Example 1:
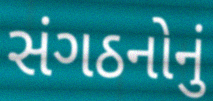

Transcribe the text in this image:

સંગઠનોનું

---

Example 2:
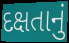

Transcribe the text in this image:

દક્ષતાનું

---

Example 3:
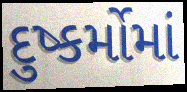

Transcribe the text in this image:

દુષ્કર્મોમાં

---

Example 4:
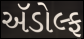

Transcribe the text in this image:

ઍડોલ્ફ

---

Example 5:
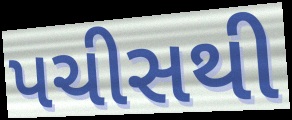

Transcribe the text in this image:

પચીસથી